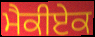
ਮੈਕੀਏਕ